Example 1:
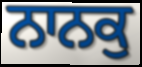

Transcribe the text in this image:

ਨਾਨਕੁ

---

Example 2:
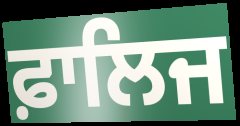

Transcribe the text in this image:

ਫ਼ਾਲਿਜ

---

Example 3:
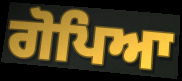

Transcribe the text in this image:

ਗੋਪਿਆ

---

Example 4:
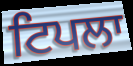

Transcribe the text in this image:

ਟਿਪਲਾ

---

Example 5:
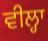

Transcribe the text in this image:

ਵੀਲ੍ਹਾ